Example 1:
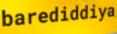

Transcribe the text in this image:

barediddiya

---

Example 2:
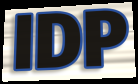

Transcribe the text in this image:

IDP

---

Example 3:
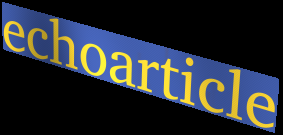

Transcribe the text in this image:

echoarticle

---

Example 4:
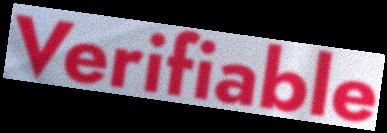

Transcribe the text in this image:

Verifiable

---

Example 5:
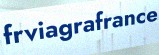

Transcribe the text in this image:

frviagrafrance